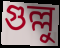
গুল্লু